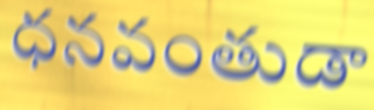
ధనవంతుడా